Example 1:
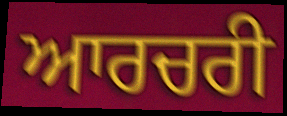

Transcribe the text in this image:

ਆਰਚਰੀ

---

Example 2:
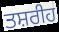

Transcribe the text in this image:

ਤਸ਼ਰੀਹ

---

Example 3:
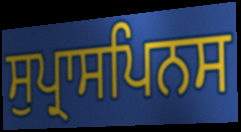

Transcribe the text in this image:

ਸੁਪ੍ਰਾਸਪਿਨਸ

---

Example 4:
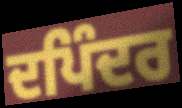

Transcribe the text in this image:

ਦਪਿੰਦਰ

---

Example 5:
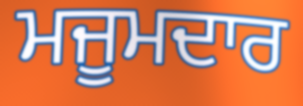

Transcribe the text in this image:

ਮਜੂਮਦਾਰ